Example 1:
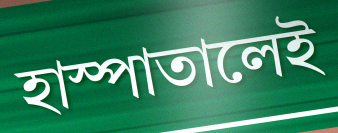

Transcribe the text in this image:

হাস্পাতালেই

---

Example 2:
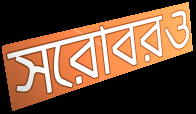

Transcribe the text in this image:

সরোবরও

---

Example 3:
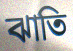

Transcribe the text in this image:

ঝাতি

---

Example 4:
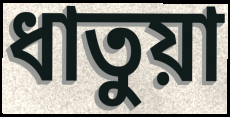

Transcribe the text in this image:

ধাতুয়া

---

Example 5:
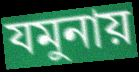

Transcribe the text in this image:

যমুনায়